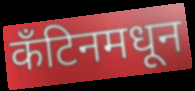
कँटिनमधून